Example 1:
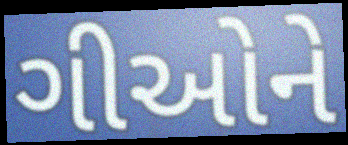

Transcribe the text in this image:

ગીઓને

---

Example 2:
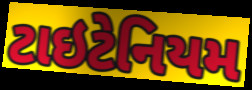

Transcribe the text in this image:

ટાઇટેનિયમ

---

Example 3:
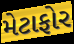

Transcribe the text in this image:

મેટાફોર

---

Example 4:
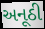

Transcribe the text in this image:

અનૂઠી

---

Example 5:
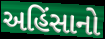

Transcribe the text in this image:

અહિંસાનો